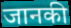
जानकी